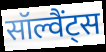
सॉल्वैंट्स